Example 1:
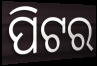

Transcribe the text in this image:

ପିଟର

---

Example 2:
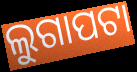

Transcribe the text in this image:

ଲୁଗାପଟା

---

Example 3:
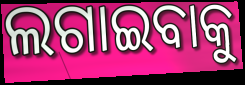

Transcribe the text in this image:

ଲଗାଇବାକୁ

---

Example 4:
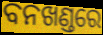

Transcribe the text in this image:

ବନଖଣ୍ଡରେ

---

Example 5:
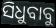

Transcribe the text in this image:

ସିଧୁବାବୁ